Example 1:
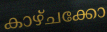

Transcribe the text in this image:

കാഴ്ചക്കോ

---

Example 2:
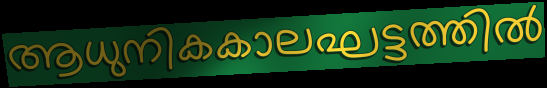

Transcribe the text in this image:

ആധുനികകാലഘട്ടത്തിൽ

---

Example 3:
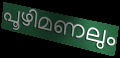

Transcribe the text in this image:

പൂഴിമണലും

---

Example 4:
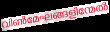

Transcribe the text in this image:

വിൺമേഘങ്ങളിന്മേൽ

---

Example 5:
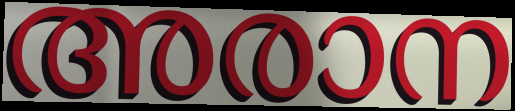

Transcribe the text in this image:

അരാന